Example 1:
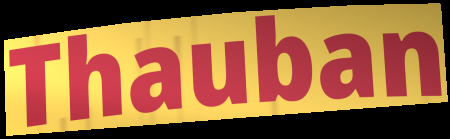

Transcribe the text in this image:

Thauban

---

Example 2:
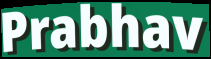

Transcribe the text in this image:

Prabhav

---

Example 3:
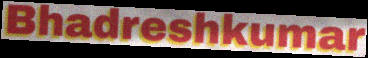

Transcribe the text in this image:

Bhadreshkumar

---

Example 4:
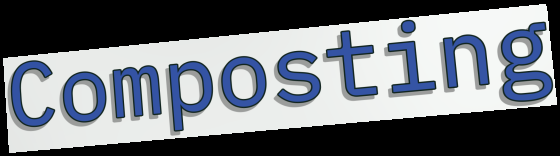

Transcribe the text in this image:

Composting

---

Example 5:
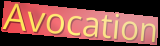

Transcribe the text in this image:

Avocation